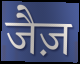
जैज़